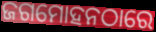
ଜଗମୋହନଠାରେ